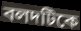
বলদটিকে